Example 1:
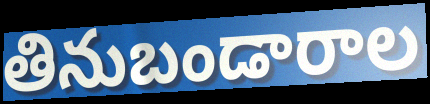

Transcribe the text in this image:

తినుబండారాల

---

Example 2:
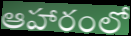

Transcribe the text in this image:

ఆహారంలో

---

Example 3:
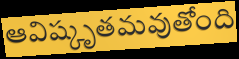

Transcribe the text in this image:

ఆవిష్కృతమవుతోంది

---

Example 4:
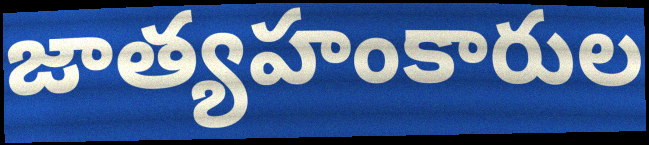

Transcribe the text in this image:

జాత్యహంకారుల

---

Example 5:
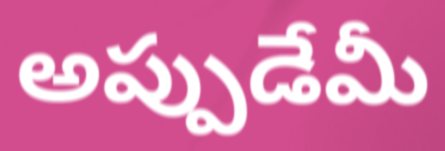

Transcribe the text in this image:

అప్పుడేమీ